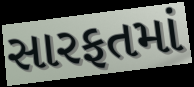
સારફતમાં